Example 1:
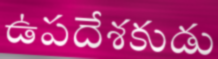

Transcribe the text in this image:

ఉపదేశకుడు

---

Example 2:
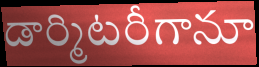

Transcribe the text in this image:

డార్మిటరీగానూ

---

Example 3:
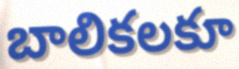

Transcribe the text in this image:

బాలికలకూ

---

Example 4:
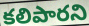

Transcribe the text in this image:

కలిపారని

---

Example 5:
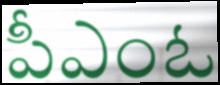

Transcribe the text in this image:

పీఎంఓ